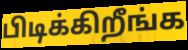
பிடிக்கிறீங்க